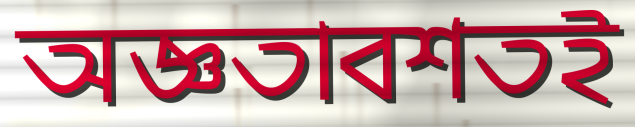
অজ্ঞতাবশতই